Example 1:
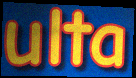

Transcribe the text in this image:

ulta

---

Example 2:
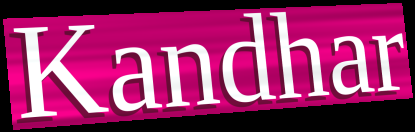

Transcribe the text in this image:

Kandhar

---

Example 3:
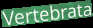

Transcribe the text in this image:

Vertebrata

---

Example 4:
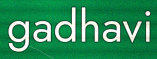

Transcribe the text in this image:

gadhavi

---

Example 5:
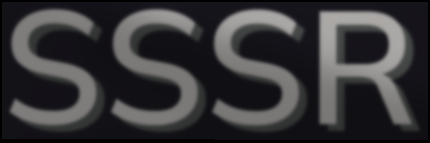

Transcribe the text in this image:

SSSR